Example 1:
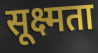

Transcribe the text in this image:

सूक्ष्मता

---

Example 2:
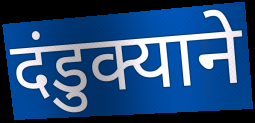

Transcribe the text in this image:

दंडुक्याने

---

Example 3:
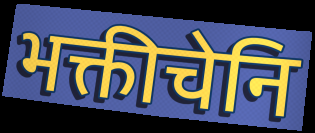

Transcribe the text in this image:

भक्तीचेनि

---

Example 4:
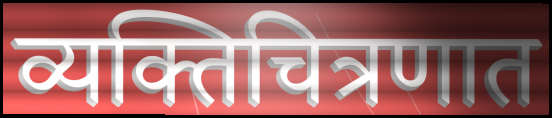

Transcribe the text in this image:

व्यक्तिचित्रणात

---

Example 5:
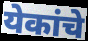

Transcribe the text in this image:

येकांचे